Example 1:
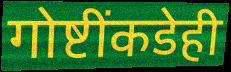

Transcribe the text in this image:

गोष्टींकडेही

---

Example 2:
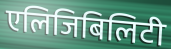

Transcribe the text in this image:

एलिजिबिलिटी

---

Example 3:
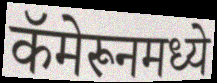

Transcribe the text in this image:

कॅमेरूनमध्ये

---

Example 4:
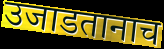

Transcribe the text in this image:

उजाडतानाच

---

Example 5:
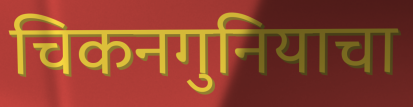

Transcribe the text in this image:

चिकनगुनियाचा